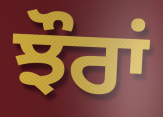
ਝੌਰਾਂ